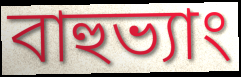
বাহুভ্যাং